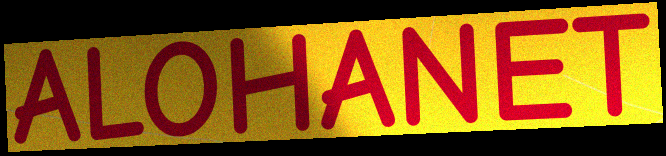
ALOHANET